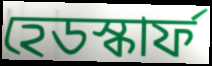
হেডস্কার্ফ